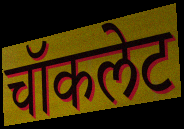
चॉकलेट